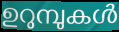
ഉറുമ്പുകൾ